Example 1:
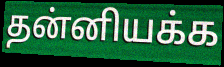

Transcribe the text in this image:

தன்னியக்க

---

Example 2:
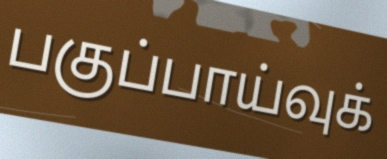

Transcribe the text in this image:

பகுப்பாய்வுக்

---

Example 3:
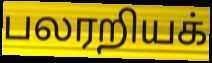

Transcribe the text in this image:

பலரறியக்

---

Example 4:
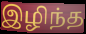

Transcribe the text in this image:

இழிந்த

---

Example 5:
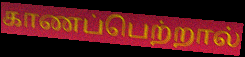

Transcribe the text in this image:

காணப்பெற்றால்